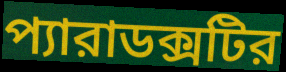
প্যারাডক্সটির